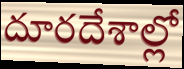
దూరదేశాల్లో